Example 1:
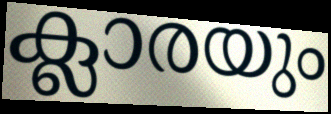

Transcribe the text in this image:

ക്ലാരയും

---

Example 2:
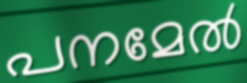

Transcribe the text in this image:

പനമേൽ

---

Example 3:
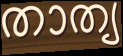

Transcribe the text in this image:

താത്യ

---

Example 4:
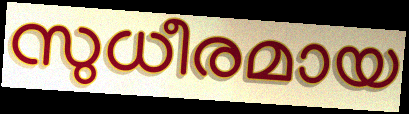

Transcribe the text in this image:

സുധീരമായ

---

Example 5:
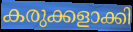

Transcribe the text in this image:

കരുക്കളാക്കി